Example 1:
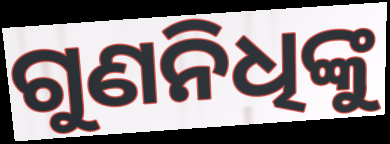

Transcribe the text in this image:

ଗୁଣନିଧିଙ୍କୁ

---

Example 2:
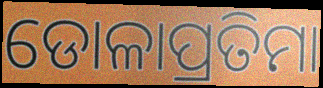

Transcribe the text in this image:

ଡୋଳାପ୍ରତିମା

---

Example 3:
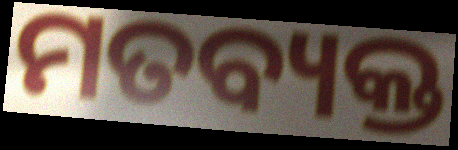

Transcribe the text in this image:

ମତବ୍ୟକ୍ତ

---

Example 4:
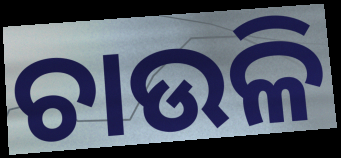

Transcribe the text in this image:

ଚାଉଳି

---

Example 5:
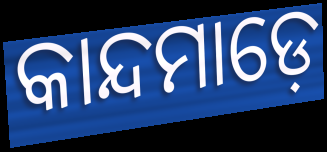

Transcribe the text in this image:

କାନ୍ଦମାଡ଼େ